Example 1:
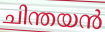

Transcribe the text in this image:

ചിന്തയൻ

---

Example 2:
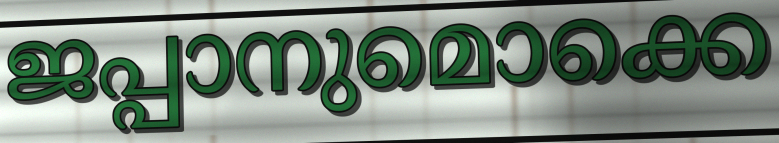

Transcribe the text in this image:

ജപ്പാനുമൊക്കെ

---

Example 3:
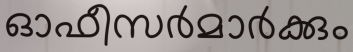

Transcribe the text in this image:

ഓഫീസർമാർക്കും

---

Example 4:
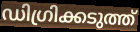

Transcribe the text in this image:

ഡിഗ്രിക്കടുത്ത്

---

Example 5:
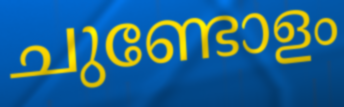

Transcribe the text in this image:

ചുണ്ടോളം